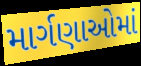
માર્ગણાઓમાં